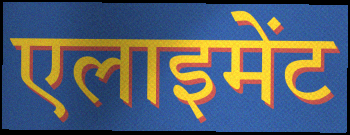
एलाइमेंट